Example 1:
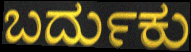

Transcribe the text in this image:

ಬರ್ದುಕು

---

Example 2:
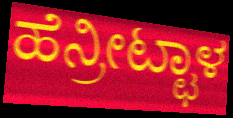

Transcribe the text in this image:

ಹೆನ್ರೀಟ್ಟಾಳ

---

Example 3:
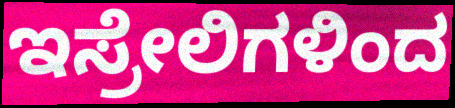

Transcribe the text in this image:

ಇಸ್ರೇಲಿಗಳಿಂದ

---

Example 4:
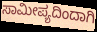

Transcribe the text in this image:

ಸಾಮೀಪ್ಯದಿಂದಾಗಿ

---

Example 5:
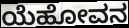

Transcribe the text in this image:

ಯೆಹೋವನ